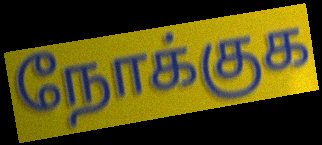
நோக்குக